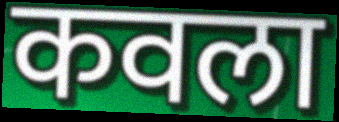
कवला